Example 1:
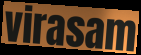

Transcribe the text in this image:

virasam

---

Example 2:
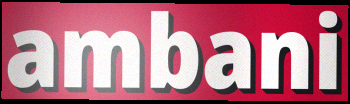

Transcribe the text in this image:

ambani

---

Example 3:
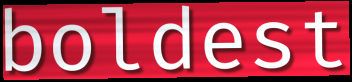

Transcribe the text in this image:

boldest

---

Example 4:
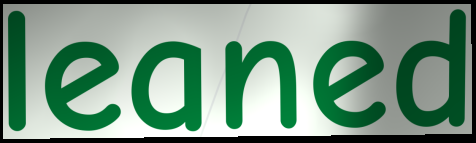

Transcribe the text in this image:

leaned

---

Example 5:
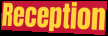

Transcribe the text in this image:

Reception